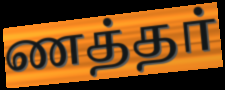
ணத்தர்